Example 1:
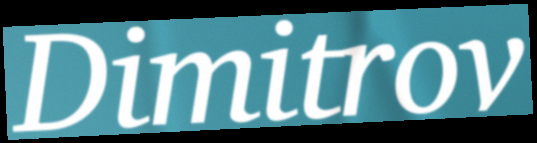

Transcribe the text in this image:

Dimitrov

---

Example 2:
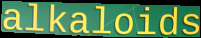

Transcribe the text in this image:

alkaloids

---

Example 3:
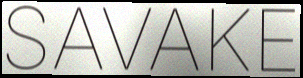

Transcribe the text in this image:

SAVAKE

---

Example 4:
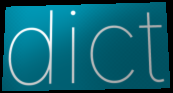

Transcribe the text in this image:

dict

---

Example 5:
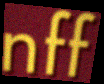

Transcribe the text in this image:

nff